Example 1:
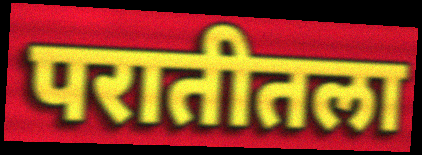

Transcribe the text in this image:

परातीतला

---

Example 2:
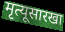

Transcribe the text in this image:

मृत्यूसारखा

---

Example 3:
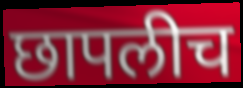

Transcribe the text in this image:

छापलीच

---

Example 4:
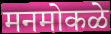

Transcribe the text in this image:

मनमोकळे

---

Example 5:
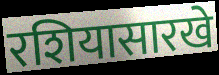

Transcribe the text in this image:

रशियासारखे